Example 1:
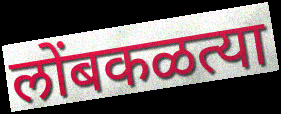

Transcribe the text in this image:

लोंबकळत्या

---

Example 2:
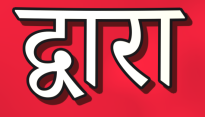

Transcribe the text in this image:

द्वारा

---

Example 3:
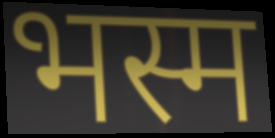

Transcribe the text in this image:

भस्म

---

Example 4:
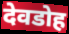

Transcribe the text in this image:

देवडोह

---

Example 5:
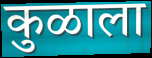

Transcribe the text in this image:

कुळाला